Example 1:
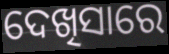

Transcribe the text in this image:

ଦେଖିସାରେ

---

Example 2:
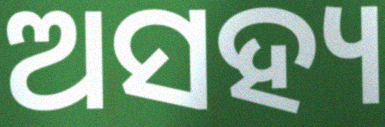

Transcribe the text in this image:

ଅସହ୍ୟ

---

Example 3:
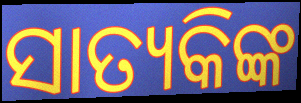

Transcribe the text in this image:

ସାତ୍ୟକିଙ୍କ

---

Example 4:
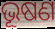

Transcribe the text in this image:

ଭୂଷଣ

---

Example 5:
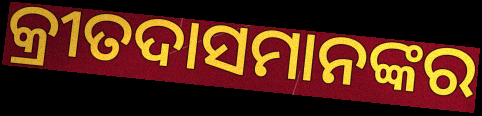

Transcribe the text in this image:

କ୍ରୀତଦାସମାନଙ୍କର